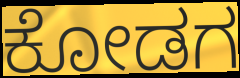
ಕೋಡಗ